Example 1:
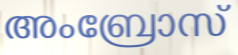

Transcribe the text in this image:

അംബ്രോസ്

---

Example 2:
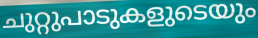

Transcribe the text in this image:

ചുറ്റുപാടുകളുടെയും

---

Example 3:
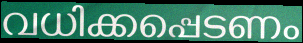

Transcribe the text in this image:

വധിക്കപ്പെടണം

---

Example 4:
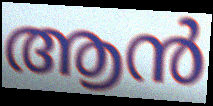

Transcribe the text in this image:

ആൻ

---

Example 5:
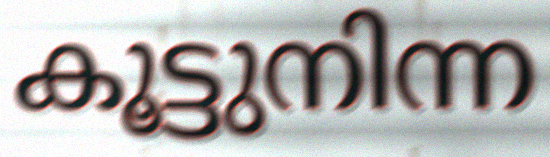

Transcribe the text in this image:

കൂട്ടുനിന്ന